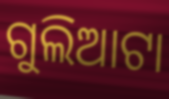
ଗୁଲିଆଟା